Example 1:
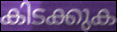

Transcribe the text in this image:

കിടക്കുക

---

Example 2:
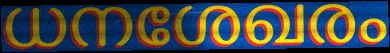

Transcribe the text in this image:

ധനശേഖരം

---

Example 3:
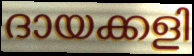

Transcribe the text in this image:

ദായക്കളി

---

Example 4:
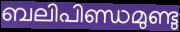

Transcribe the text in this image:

ബലിപിണ്ഡമുണ്ടു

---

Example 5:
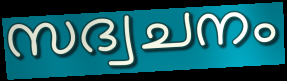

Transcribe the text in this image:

സദ്വചനം